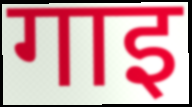
गाइ